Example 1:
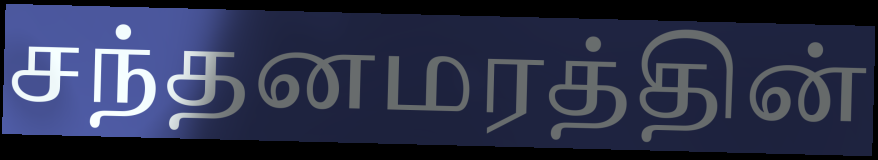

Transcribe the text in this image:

சந்தனமரத்தின்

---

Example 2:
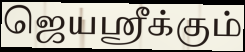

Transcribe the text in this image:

ஜெயஸ்ரீக்கும்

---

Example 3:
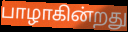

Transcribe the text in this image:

பாழாகின்றது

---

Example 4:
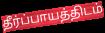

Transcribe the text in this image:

தீர்ப்பாயத்திடம்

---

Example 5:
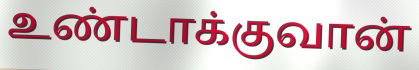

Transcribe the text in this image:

உண்டாக்குவான்